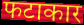
फटाकार